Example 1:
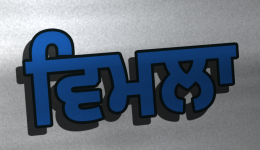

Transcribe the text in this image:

ਵਿਮਲਾ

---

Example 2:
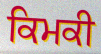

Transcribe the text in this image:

ਕਿਮਕੀ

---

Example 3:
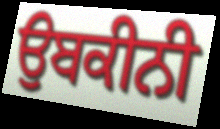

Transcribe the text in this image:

ਉਬਕੀਨੀ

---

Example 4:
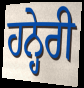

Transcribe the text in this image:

ਹਨ੍ਹੇਰੀ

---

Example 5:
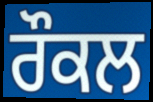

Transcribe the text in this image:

ਰੌਕਲ